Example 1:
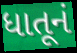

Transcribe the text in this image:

ધાતૂનં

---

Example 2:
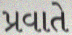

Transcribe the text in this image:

પ્રવાતે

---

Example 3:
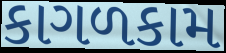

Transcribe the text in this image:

કાગળકામ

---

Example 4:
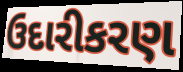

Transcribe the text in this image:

ઉદારીકરણ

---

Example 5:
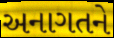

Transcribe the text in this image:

અનાગતને